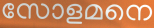
സോളമനെ